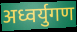
अध्वर्युगण